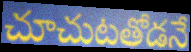
చూచుటతోడనే